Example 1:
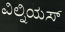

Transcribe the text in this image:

ವಿಲ್ನಿಯಸ್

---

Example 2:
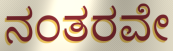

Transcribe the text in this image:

ನಂತರವೇ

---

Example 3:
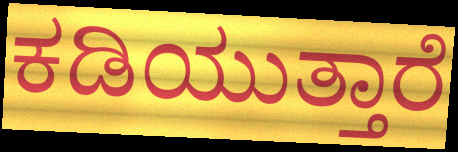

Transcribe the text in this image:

ಕಡಿಯುತ್ತಾರೆ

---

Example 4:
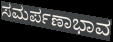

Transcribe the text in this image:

ಸಮರ್ಪಣಾಭಾವ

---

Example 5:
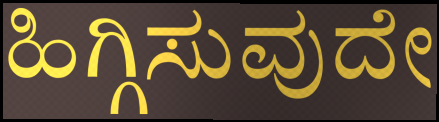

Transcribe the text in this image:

ಹಿಗ್ಗಿಸುವುದೇ